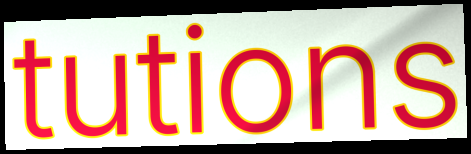
tutions